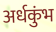
अर्धकुंभ